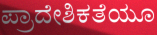
ಪ್ರಾದೇಶಿಕತೆಯೂ